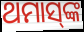
ଥମାସ୍‌ଙ୍କ